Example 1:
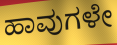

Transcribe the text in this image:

ಹಾವುಗಳೇ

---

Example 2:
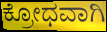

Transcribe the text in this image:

ಕ್ರೋಧವಾಗಿ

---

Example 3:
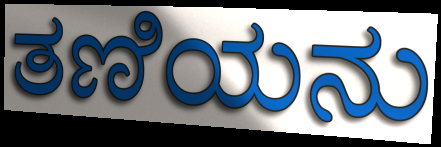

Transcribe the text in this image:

ತಣಿಯನು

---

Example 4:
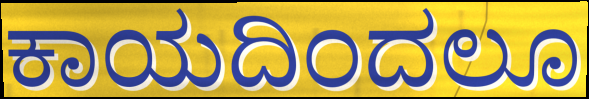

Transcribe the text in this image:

ಕಾಯದಿಂದಲೂ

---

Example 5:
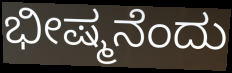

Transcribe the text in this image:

ಭೀಷ್ಮನೆಂದು